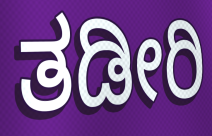
ತಡೀರಿ